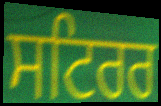
ਸਟਿਰਰ